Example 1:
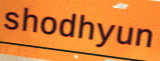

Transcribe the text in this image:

shodhyun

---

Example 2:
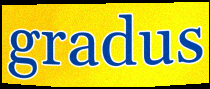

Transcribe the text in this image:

gradus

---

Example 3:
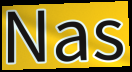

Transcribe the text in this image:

Nas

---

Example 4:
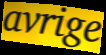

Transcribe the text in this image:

avrige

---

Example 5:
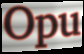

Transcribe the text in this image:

Opu